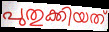
പുതുക്കിയത്